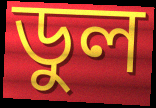
ডুল